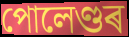
পোলেণ্ডৰ